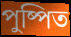
পুষ্পিত